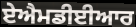
ਏਐਮਡੀਈਆਰ